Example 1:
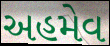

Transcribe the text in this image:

અહમેવ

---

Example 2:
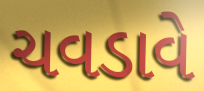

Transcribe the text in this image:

ચવડાવે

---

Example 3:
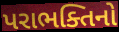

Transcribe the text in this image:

પરાભક્તિનો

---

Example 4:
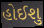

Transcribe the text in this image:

હોઈશુ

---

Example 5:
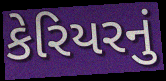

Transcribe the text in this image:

કેરિયરનું